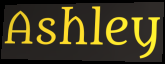
Ashley